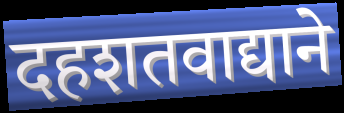
दहशतवाद्याने